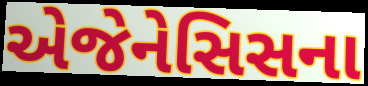
એજેનેસિસના